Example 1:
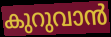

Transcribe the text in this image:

കുറുവാൻ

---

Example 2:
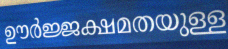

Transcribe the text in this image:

ഊർജ്ജക്ഷമതയുള്ള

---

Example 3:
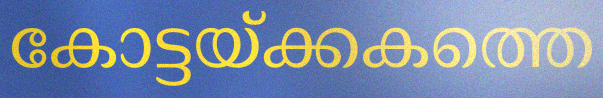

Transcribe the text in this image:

കോട്ടയ്ക്കകത്തെ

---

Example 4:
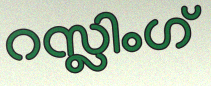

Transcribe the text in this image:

റസ്ലിംഗ്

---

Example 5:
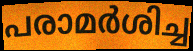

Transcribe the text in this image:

പരാമർശിച്ച